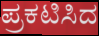
ಪ್ರಕಟಿಸಿದ